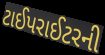
ટાઈપરાઈટરની